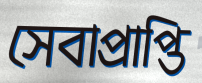
সেবাপ্রাপ্তি